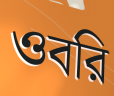
ওবরি